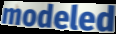
modeled